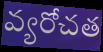
వ్యరోచత